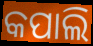
କପାଲି